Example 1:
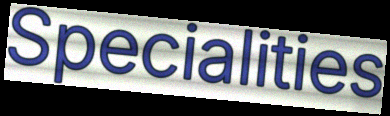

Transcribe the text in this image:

Specialities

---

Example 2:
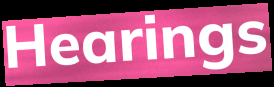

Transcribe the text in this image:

Hearings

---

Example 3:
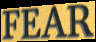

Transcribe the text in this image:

FEAR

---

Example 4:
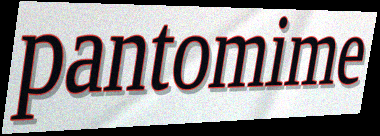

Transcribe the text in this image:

pantomime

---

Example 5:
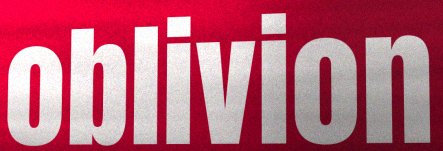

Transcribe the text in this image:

oblivion